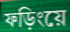
ফড়িংয়ে